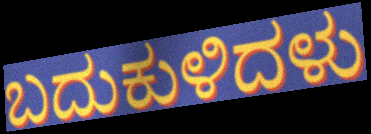
ಬದುಕುಳಿದಳು